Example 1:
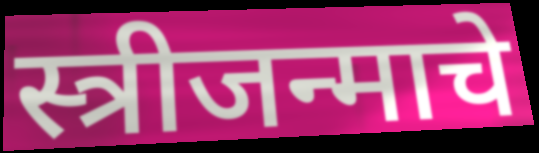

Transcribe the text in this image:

स्त्रीजन्माचे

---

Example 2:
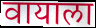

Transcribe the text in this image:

वायाला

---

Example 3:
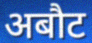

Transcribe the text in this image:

अबौट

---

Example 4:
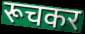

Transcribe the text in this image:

रूचकर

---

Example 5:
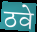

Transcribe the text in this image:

ठवे